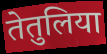
तेतुलिया